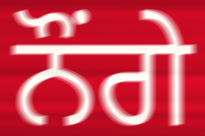
ਨੌਂਗੇ